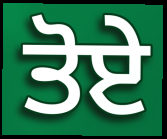
ਤੋਏ